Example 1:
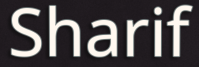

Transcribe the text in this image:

Sharif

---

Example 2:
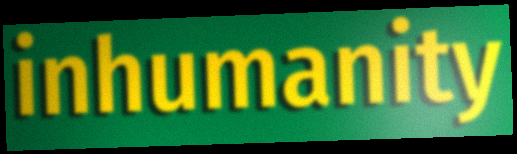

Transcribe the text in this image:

inhumanity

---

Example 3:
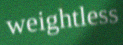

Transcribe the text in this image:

weightless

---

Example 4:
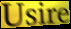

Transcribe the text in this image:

Usire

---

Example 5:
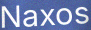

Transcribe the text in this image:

Naxos